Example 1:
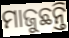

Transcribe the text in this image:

ମାଜୁଛନ୍ତି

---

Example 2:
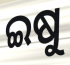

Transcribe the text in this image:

ଇଷୁ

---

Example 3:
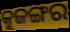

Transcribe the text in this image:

କୁଜଙ୍ଗର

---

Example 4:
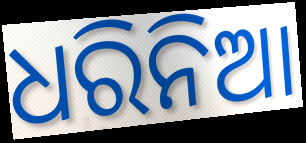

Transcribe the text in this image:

ଧରିନିଆ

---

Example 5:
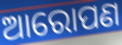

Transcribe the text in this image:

ଆରୋପଣ